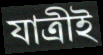
যাত্রীই